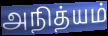
அநித்யம்